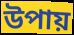
উপায়